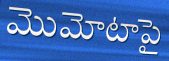
మొమోటాపై